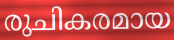
രുചികരമായ